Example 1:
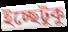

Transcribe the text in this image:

ইচ্ছেটুকু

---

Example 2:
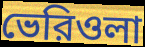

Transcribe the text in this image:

ভেরিওলা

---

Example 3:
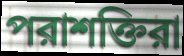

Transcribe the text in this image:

পরাশক্তিরা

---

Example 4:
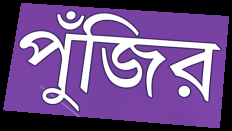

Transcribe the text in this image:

পুঁজির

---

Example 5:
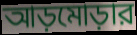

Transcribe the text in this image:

আড়মোড়ার